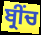
ਬ੍ਰੀਂਚ